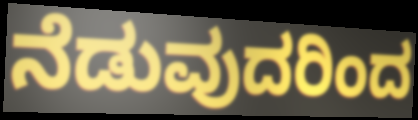
ನೆಡುವುದರಿಂದ